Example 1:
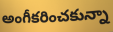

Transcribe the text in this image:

అంగీకరించకున్నా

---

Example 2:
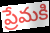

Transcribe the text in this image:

ప్రేమకి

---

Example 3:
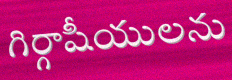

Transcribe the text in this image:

గిర్గాషీయులను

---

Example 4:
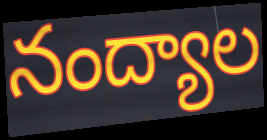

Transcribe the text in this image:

నంద్యాల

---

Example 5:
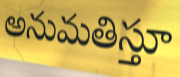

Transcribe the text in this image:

అనుమతిస్తూ